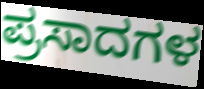
ಪ್ರಸಾದಗಳ